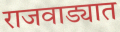
राजवाड्यात